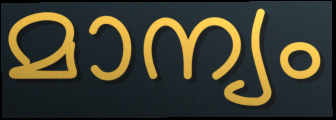
മാന്യം